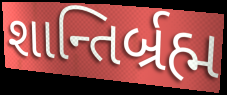
શાન્તિર્બ્રહ્મ